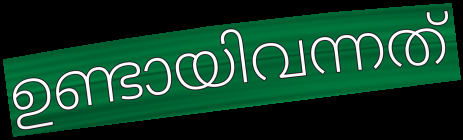
ഉണ്ടായിവന്നത്